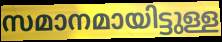
സമാനമായിട്ടുള്ള